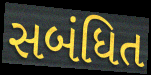
સબંધિત